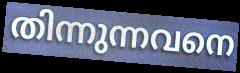
തിന്നുന്നവനെ